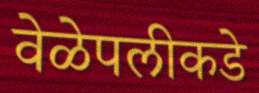
वेळेपलीकडे